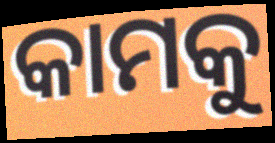
କାମକୁ